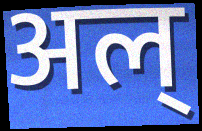
अल्